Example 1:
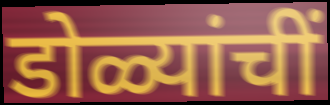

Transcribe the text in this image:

डोळ्यांचीं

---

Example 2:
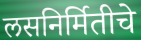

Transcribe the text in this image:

लसनिर्मितीचे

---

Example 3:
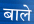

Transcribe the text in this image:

बाले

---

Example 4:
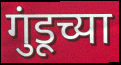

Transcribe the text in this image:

गुंडूच्या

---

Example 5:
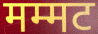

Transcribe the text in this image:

मम्मट